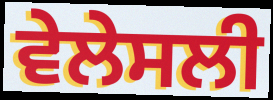
ਵੇਲੇਸਲੀ